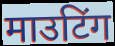
माउटिंग